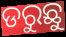
ଡରୁଛୁ